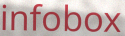
infobox